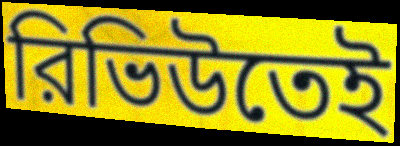
রিভিউতেই